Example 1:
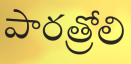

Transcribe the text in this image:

పారత్రోలి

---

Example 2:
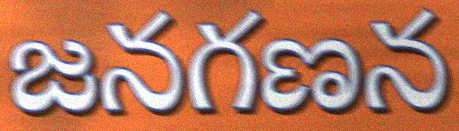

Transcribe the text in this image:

జనగణన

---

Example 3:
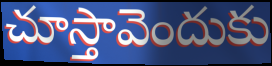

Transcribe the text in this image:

చూస్తావెందుకు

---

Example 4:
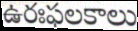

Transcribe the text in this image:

ఉరఃఫలకాలు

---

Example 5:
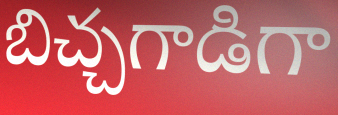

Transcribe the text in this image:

బిచ్చగాడిగా